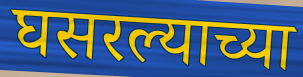
घसरल्याच्या